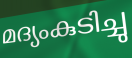
മദ്യംകുടിച്ചു